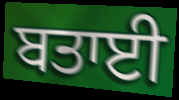
ਬਤਾਈ